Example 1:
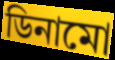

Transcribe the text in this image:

ডিনামো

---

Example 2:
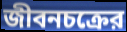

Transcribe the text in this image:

জীবনচক্রের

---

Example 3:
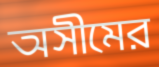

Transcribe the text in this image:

অসীমের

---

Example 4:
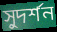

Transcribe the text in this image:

সুদর্শন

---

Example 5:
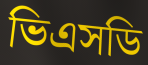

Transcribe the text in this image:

ভিএসডি